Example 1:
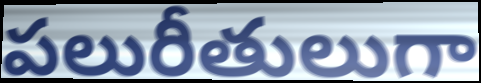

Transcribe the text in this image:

పలురీతులుగా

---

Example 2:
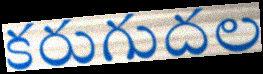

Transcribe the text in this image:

కరుగుదల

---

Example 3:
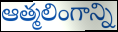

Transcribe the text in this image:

ఆత్మలింగాన్ని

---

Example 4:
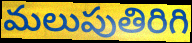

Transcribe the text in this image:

మలుపుతిరిగి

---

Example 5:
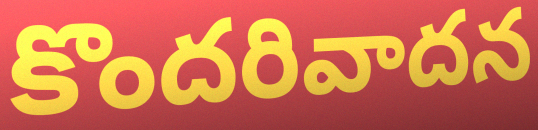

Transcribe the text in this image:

కొందరివాదన